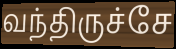
வந்திருச்சே